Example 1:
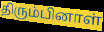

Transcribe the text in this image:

திரும்பினாள்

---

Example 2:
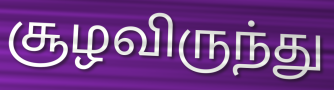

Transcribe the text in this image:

சூழவிருந்து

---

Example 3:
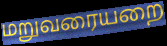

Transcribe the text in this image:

மறுவரையறை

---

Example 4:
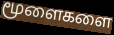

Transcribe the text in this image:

மூளைகளை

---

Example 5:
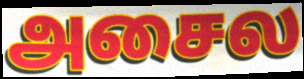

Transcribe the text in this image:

அசைல